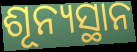
ଶୂନ୍ୟସ୍ଥାନ